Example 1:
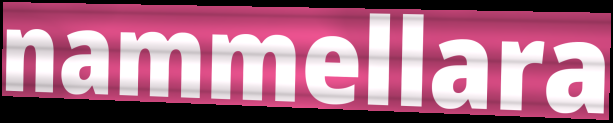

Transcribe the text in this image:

nammellara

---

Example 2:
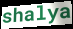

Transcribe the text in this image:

shalya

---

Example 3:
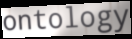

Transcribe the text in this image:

ontology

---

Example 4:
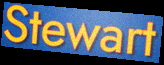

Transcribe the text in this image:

Stewart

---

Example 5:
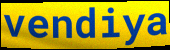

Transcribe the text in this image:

vendiya